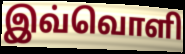
இவ்வொளி